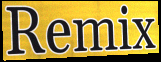
Remix